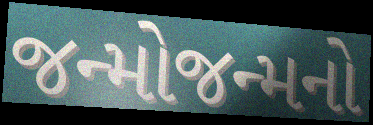
જન્મોજન્મનો